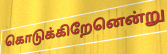
கொடுக்கிறேனென்று